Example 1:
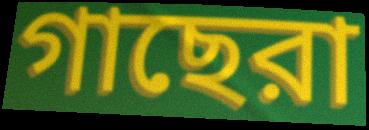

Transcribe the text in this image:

গাছেরা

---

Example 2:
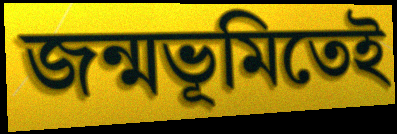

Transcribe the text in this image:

জন্মভূমিতেই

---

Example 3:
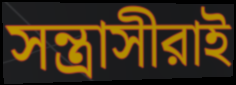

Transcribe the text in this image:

সন্ত্রাসীরাই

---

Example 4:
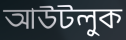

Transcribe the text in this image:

আউটলুক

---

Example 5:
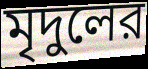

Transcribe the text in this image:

মৃদুলের